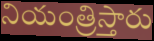
నియంత్రిస్తారు